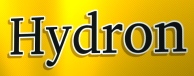
Hydron